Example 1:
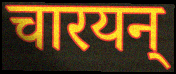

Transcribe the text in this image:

चारयन्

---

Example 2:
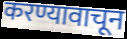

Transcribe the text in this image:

करण्यावाचून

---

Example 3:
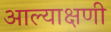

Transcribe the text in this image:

आल्याक्षणी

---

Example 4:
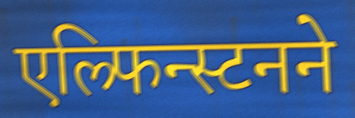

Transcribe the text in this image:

एल्फिन्स्टनने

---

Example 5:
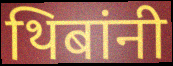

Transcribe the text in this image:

थिबांनी